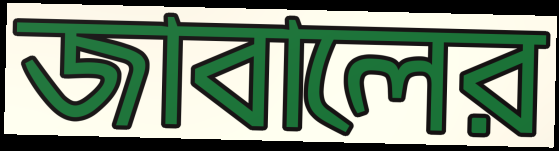
জাবালের